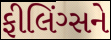
ફીલિંગ્સને